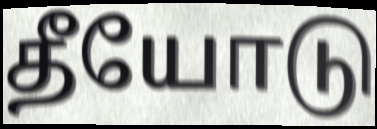
தீயோடு